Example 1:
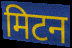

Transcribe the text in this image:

मिटन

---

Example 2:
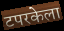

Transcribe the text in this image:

टपरकेला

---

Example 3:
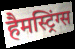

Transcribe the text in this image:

हैमस्ट्रिंग्स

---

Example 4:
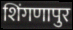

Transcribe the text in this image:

शिंगणापुर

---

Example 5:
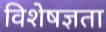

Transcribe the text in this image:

विशेषज्ञता